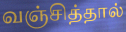
வஞ்சித்தால்